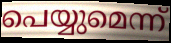
പെയ്യുമെന്ന്